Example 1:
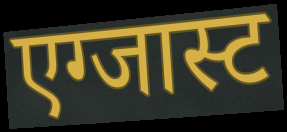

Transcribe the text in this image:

एग्जास्ट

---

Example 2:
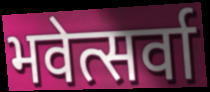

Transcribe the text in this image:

भवेत्सर्वा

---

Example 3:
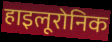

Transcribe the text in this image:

हाइलूरोनिक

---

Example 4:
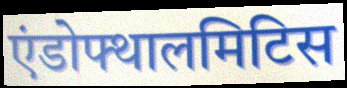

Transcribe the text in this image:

एंडोफ्थालमिटिस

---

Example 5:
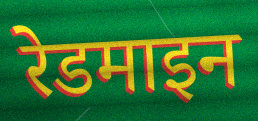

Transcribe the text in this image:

रेडमाइन